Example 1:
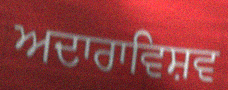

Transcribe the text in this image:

ਅਦਾਰਾਵਿਸ਼ਵ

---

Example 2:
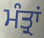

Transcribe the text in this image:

ਮੰਤ੍ਰਾਂ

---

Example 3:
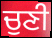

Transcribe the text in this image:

ਚੁਣੀ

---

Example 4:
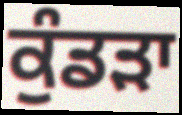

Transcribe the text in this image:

ਕੁੰਡੜਾ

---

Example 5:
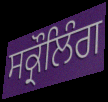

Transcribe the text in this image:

ਸਕ੍ਰੌਲਿੰਗ